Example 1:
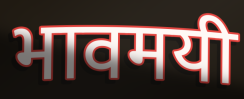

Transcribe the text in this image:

भावमयी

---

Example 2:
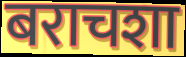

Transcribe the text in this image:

बराचशा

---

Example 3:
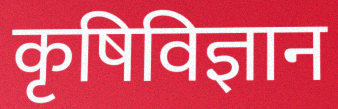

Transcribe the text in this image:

कृषिविज्ञान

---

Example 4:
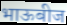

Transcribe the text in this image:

भाऊबीज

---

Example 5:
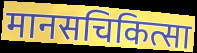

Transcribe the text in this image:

मानसचिकित्सा